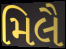
મિલૈ